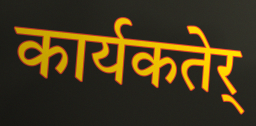
कार्यकतेर्